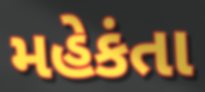
મહેકંતા